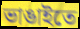
ভাঙাইতে